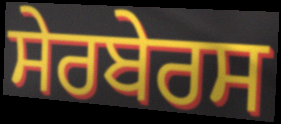
ਸੇਰਬੇਰਸ